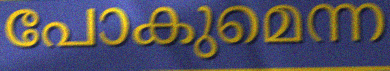
പോകുമെന്ന